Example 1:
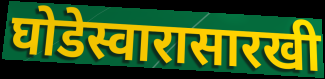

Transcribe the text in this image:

घोडेस्वारासारखी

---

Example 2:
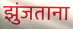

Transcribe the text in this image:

झुंजताना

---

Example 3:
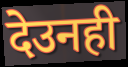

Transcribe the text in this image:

देउनही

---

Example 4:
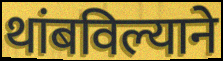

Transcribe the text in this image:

थांबविल्याने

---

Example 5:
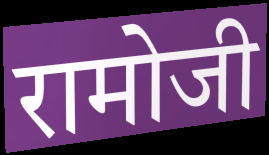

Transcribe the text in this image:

रामोजी